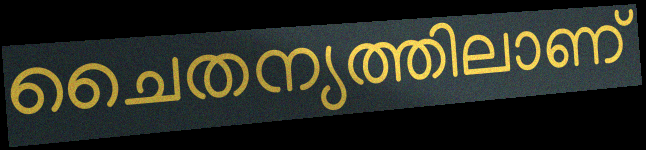
ചൈതന്യത്തിലാണ്